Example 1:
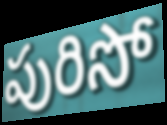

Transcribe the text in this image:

పురిసో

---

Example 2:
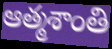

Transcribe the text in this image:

ఆత్మశాంతి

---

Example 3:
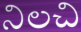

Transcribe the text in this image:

నిలచి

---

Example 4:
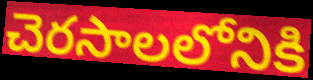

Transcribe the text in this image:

చెరసాలలోనికి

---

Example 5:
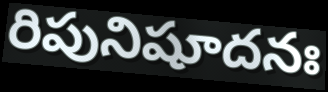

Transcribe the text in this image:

రిపునిషూదనః